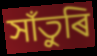
সাঁতুৰি